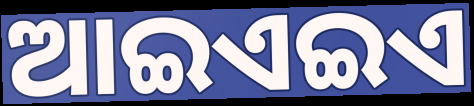
ଆଇଏଇଏ